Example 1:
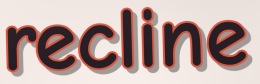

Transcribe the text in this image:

recline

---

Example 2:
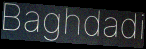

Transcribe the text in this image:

Baghdadi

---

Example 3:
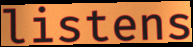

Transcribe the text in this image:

listens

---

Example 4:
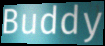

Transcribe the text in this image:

Buddy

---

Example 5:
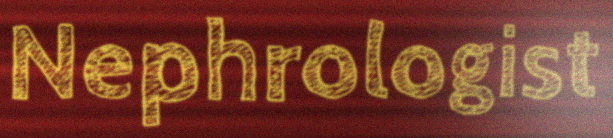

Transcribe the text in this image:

Nephrologist